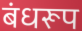
बंधरूप